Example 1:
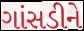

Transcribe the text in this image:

ગાંસડીને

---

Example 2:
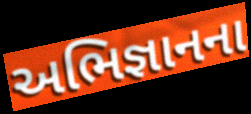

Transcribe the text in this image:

અભિજ્ઞાનના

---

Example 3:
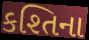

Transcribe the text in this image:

કશ્તિના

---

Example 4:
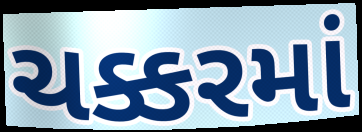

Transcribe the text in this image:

ચક્કરમાં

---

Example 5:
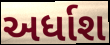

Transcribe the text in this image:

અર્ધાશ